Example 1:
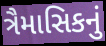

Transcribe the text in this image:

ત્રૈમાસિકનું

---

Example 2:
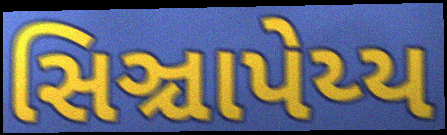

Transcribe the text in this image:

સિઞ્ચાપેય્ય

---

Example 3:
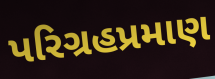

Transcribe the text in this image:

પરિગ્રહપ્રમાણ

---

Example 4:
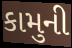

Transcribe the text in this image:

કામુની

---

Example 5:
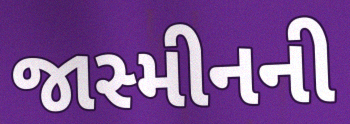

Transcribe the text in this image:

જાસ્મીનની